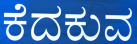
ಕೆದಕುವ